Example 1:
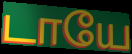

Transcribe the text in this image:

டாயே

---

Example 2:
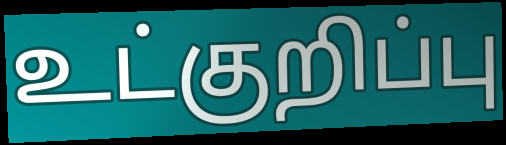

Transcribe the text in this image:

உட்குறிப்பு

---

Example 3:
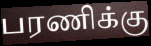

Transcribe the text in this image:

பரணிக்கு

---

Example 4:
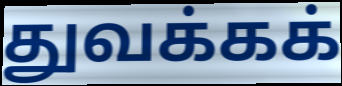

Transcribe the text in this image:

துவக்கக்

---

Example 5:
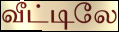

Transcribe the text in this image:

வீட்டிலே